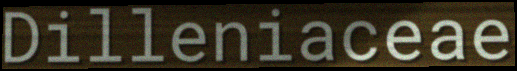
Dilleniaceae